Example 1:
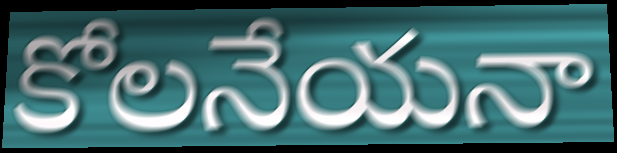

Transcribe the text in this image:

కోలనేయనా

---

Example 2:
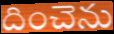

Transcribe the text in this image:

దించెను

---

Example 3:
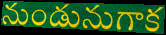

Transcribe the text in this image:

నుండునుగాక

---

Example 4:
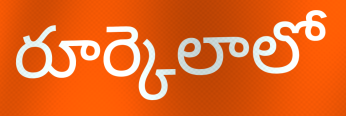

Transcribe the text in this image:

రూర్కెలాలో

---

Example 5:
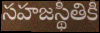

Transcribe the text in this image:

సహజస్థితికి